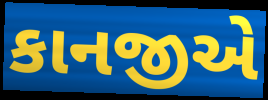
કાનજીએ